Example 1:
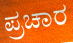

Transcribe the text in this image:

ಪ್ರಚಾರ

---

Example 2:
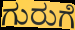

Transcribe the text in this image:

ಗುರುಗೆ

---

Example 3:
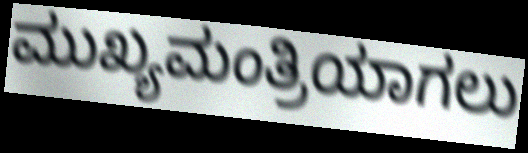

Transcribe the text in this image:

ಮುಖ್ಯಮಂತ್ರಿಯಾಗಲು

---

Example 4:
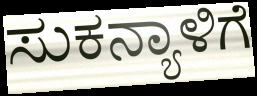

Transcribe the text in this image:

ಸುಕನ್ಯಾಳಿಗೆ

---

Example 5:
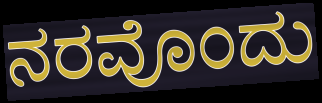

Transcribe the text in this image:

ನರವೊಂದು